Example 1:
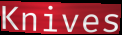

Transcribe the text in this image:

Knives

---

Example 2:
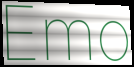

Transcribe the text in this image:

Emo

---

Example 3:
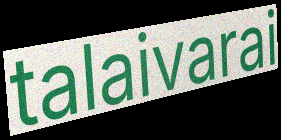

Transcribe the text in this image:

talaivarai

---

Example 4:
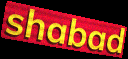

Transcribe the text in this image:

shabad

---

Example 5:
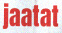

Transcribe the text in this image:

jaatat